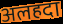
अलहदा